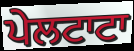
ਪੇਲਟਾਟਾ